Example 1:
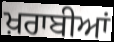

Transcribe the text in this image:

ਖ਼ਰਾਬੀਆਂ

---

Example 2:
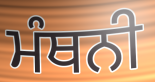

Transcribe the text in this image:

ਮੰਥਨੀ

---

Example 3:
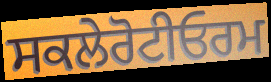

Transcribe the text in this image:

ਸਕਲੇਰੋਟੀਓਰਮ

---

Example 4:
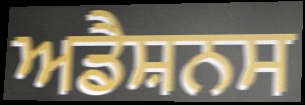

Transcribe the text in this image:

ਅਡੈਸ਼ਨਸ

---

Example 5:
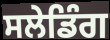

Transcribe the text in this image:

ਸਲੇਡਿੰਗ